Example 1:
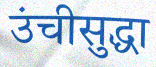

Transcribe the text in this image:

उंचीसुद्धा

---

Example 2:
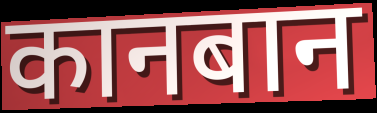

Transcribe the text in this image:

कानबान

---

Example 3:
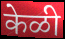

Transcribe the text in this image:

केळी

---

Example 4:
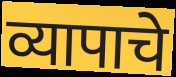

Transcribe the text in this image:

व्यापाचे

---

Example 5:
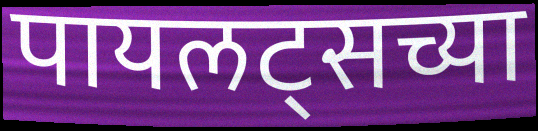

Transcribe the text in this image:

पायलट्सच्या